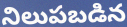
నిలుపబడిన